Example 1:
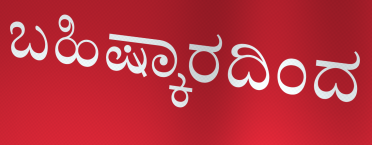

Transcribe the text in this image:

ಬಹಿಷ್ಕಾರದಿಂದ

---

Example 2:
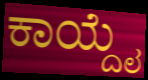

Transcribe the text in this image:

ಕಾಯ್ದೈ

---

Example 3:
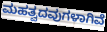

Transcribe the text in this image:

ಮಹತ್ವದವುಗಳಾಗಿವೆ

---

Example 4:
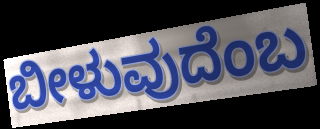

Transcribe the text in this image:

ಬೀಳುವುದೆಂಬ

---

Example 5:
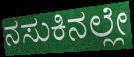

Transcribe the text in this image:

ನಸುಕಿನಲ್ಲೇ